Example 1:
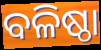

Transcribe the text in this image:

ବଳିଷ୍ଠା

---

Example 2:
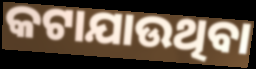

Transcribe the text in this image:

କଟାଯାଉଥିବା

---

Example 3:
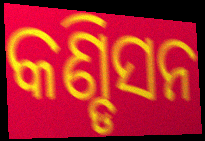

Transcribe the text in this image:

କଣ୍ଡିସନ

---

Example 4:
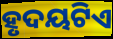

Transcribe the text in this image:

ହୃଦୟଟିଏ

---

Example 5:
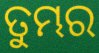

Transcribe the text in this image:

ତୁମ୍ଭର